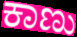
ಕಾಣು